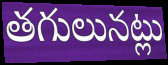
తగులునట్లు